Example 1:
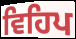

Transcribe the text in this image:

ਵਿਹਿਪ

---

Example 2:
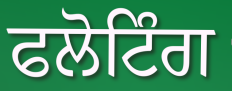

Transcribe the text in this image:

ਫਲੋਟਿੰਗ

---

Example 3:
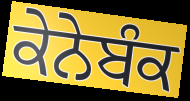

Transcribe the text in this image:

ਕੇਨੇਬੰਕ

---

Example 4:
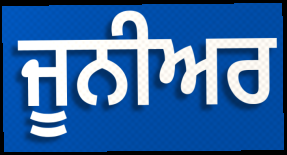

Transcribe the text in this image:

ਜੂਨੀਅਰ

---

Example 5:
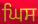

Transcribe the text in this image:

ਘਿਸ